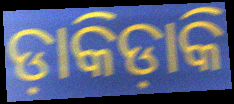
ଡ଼ାକିଡ଼ାକି